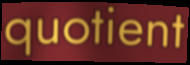
quotient